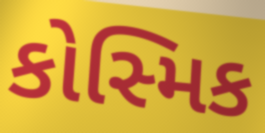
કોસ્મિક